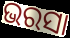
ଭରସା